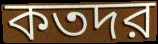
কতদর